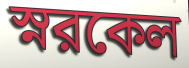
স্নরকেল